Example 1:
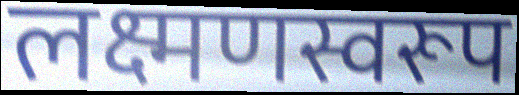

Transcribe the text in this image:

लक्ष्मणस्वरूप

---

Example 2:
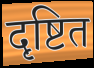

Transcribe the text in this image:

दृष्टित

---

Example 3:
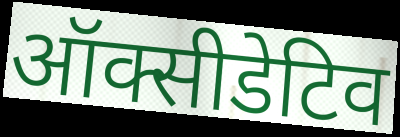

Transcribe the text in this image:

ऑक्सीडेटिव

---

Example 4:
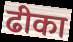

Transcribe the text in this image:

ढीका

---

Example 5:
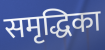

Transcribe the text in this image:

समृद्धिका